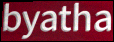
byatha